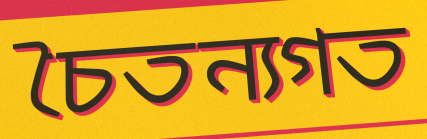
চৈতন্যগত